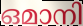
ഒമാനി